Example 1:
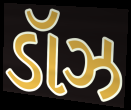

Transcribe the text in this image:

ડૉઝ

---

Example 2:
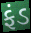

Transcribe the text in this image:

ફંડ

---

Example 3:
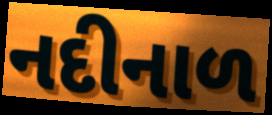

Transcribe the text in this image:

નદીનાળ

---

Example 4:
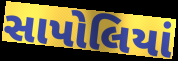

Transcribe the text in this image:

સાપોલિયાં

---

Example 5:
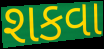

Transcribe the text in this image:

શકવા